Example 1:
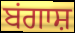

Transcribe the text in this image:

ਬਂਗਾਸ਼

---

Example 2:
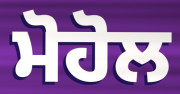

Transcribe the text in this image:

ਮੋਹੋਲ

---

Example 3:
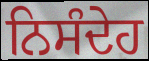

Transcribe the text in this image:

ਨਿਸੰਦੇਹ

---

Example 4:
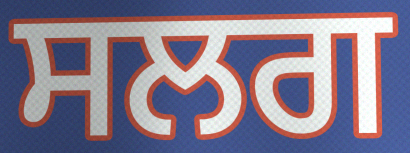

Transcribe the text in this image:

ਸਲਗ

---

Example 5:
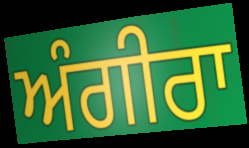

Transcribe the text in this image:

ਅੰਗੀਰਾ